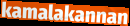
kamalakannan